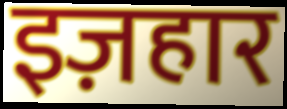
इज़हार